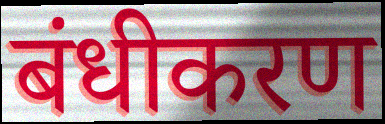
बंधीकरण